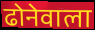
ढोनेवाला